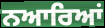
ਨਆਰਿਆਂ